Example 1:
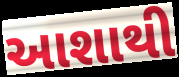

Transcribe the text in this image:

આશાથી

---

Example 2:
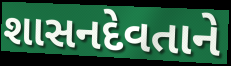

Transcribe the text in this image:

શાસનદેવતાને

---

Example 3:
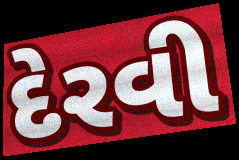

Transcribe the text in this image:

દેરવી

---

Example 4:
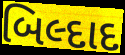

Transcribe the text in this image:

બિલ્દાદ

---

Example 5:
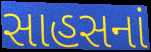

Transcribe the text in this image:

સાહસનાં